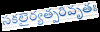
సకలైర్యత్పరివృతః